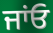
ਜਾਂਓ